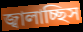
জ্বালাচ্ছিস